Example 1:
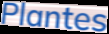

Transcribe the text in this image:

Plantes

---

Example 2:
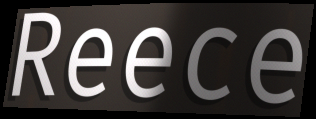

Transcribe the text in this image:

Reece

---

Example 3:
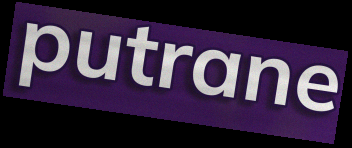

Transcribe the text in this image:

putrane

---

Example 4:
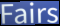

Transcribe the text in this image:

Fairs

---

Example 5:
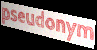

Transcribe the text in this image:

pseudonym